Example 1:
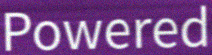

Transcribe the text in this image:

Powered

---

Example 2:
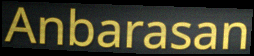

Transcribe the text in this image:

Anbarasan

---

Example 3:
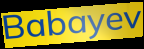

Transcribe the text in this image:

Babayev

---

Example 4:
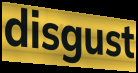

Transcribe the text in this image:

disgust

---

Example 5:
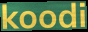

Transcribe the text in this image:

koodi